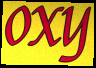
oxy